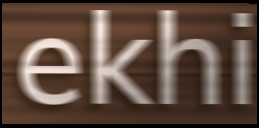
ekhi